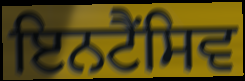
ਇਨਟੈਂਸਿਵ